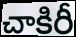
చాకిరీ